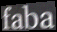
faba